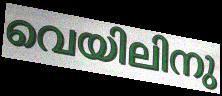
വെയിലിനു